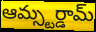
ఆమ్స్టర్డామ్